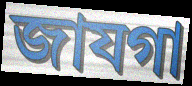
জাযগা